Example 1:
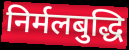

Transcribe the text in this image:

निर्मलबुद्धि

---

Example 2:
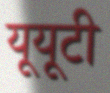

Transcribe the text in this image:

यूयूटी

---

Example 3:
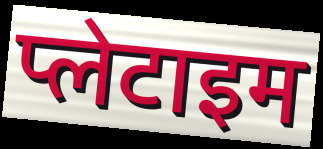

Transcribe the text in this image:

प्लेटाइम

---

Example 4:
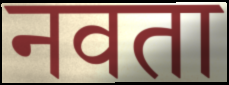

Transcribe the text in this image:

नवता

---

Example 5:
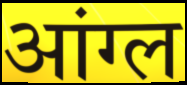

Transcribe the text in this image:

आंग्ल